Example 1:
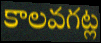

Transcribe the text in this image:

కాలవగట్ల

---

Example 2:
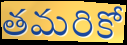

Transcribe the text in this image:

తమరికో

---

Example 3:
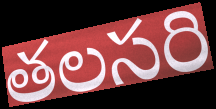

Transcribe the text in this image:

తలసరి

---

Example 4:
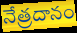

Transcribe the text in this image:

నేత్రదానం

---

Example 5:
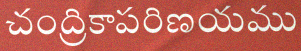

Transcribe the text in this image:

చంద్రికాపరిణయము